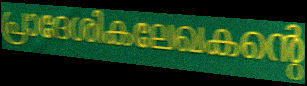
പ്രാദേശികലേഖകന്റെ